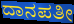
ದಾನಪತೀ